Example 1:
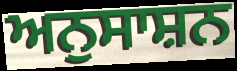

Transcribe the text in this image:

ਅਨੁਸਾਸ਼ਨ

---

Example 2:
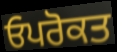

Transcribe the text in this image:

ਓਪਰੋਕਤ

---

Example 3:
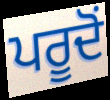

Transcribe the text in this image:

ਪਰੂਦੋਂ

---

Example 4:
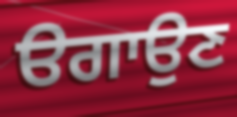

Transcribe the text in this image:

ੳਗਾਉਣ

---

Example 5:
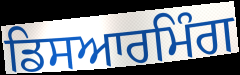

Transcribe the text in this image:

ਡਿਸਆਰਮਿੰਗ